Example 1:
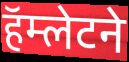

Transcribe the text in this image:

हॅम्लेटने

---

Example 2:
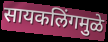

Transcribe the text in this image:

सायकलिंगमुळे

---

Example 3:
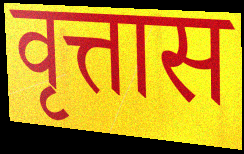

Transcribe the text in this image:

वृत्तास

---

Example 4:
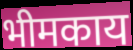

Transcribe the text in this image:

भीमकाय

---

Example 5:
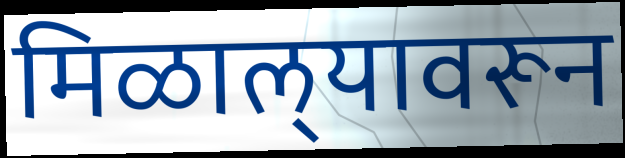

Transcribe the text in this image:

मिळाल्यावरून